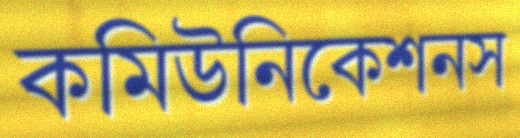
কমিউনিকেশনস